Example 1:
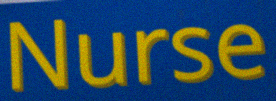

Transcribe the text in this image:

Nurse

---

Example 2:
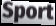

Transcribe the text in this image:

Sport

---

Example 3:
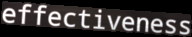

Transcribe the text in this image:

effectiveness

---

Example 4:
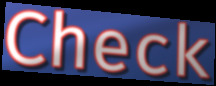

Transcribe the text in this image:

Check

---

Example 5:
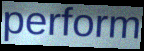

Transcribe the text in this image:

perform